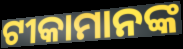
ଟୀକାମାନଙ୍କ